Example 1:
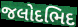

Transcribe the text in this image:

જલોદભિદ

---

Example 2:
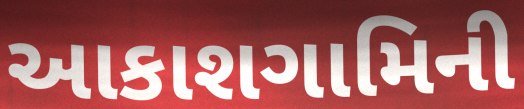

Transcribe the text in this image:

આકાશગામિની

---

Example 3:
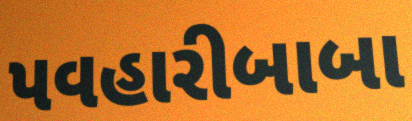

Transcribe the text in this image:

પવહારીબાબા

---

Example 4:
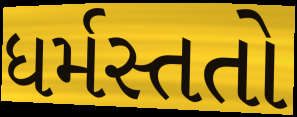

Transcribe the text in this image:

ધર્મસ્તતો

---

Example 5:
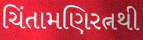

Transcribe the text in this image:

ચિંતામણિરત્નથી